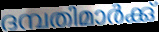
ദമ്പതിമാർക്കു്